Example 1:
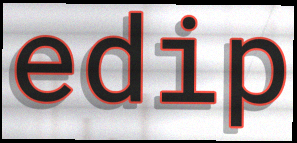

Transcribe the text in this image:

edip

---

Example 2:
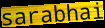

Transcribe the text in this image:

sarabhai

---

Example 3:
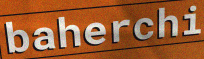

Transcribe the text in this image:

baherchi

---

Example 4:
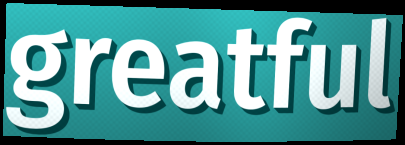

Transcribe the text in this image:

greatful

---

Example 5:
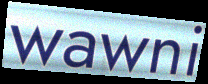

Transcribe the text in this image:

wawni